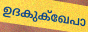
ഉദകുക്ഖേപാ